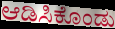
ಆಡಿಸಿಕೊಂಡು